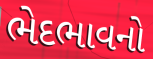
ભેદભાવનો